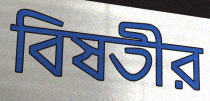
বিষতীর